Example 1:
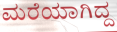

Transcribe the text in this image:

ಮರೆಯಾಗಿದ್ದ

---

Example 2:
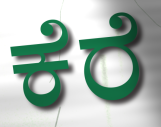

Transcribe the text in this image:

ಕೆರೆ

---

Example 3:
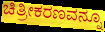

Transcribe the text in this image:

ಚಿತ್ರೀಕರಣವನ್ನೂ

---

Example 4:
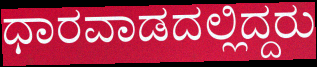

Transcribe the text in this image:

ಧಾರವಾಡದಲ್ಲಿದ್ದರು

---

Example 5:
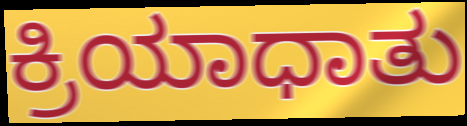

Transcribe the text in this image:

ಕ್ರಿಯಾಧಾತು